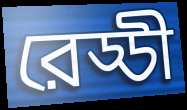
রেড্ডী